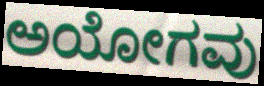
ಅಯೋಗವು